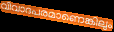
വിവാദപരമാണെങ്കിലും